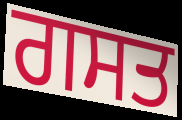
ਗਸਤ